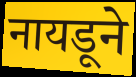
नायडूने